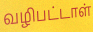
வழிபட்டாள்